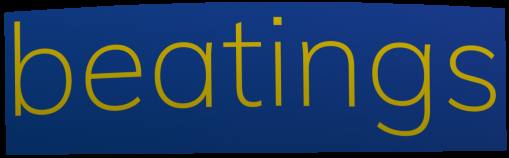
beatings